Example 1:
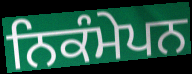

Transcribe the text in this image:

ਨਿਕੰਮੇਪਨ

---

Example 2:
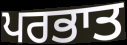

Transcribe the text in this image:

ਪਰਭਾਤ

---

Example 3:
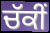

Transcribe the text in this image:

ਚੱਕੀਂ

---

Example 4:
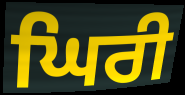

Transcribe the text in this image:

ਘਿਰੀ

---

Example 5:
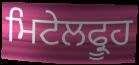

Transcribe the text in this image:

ਮਿਟੇਲਫ੍ਰੂਹ